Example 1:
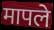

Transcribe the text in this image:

मापले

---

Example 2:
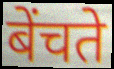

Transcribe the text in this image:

बेंचते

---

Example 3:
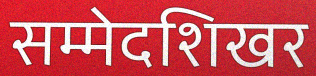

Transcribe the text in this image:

सम्मेदशिखर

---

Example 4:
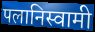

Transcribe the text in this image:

पलानिस्वामी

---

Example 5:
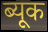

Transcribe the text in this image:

ब्यूक